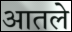
आतले